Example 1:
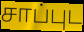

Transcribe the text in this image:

சாப்புட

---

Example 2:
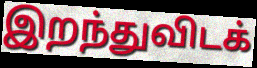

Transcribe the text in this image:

இறந்துவிடக்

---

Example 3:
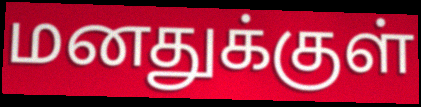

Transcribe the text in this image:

மனதுக்குள்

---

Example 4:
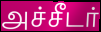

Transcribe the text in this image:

அச்சீடர்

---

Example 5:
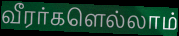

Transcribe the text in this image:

வீரர்களெல்லாம்